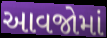
આવજોમાં